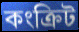
কংক্ৰিট